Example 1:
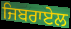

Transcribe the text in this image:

ਜਿਬਰਾਏਲ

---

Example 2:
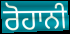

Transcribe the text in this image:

ਰੋਹਾਨੀ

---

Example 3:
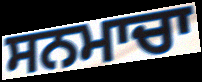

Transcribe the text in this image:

ਸਨਮਾਚਾ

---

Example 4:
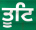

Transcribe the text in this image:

ਤੂਟਿ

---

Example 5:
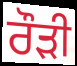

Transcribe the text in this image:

ਰੌੜੀ